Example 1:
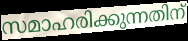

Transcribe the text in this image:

സമാഹരിക്കുന്നതിന്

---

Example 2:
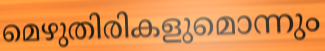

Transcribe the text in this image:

മെഴുതിരികളുമൊന്നും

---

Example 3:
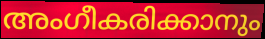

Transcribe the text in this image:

അംഗീകരിക്കാനും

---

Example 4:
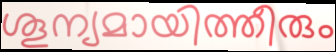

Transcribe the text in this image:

ശൂന്യമായിത്തീരും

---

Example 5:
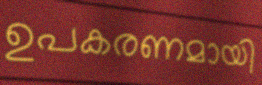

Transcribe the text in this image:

ഉപകരണമായി